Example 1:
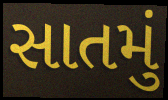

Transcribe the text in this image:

સાતમું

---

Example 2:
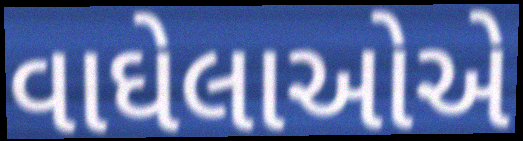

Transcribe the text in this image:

વાઘેલાઓએ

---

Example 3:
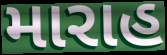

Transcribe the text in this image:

મારાહ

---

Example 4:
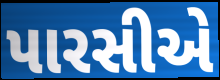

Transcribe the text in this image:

પારસીએ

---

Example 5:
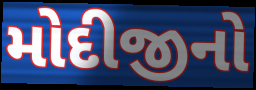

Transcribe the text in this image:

મોદીજીનો